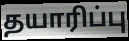
தயாரிப்பு